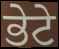
ਭੇਟੇ